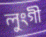
লুংগী